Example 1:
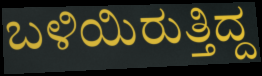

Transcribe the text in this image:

ಬಳಿಯಿರುತ್ತಿದ್ದ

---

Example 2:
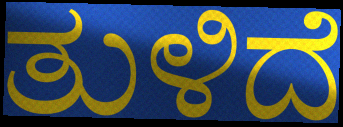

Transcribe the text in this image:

ತುಳಿದೆ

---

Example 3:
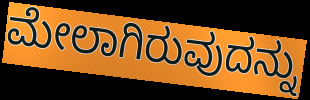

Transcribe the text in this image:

ಮೇಲಾಗಿರುವುದನ್ನು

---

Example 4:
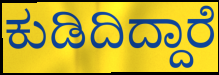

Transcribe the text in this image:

ಕುಡಿದಿದ್ದಾರೆ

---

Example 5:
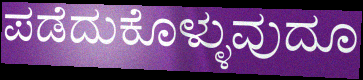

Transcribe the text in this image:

ಪಡೆದುಕೊಳ್ಳುವುದೂ